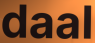
daal